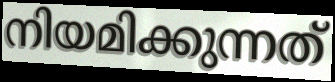
നിയമിക്കുന്നത്